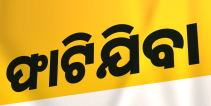
ଫାଟିଯିବା